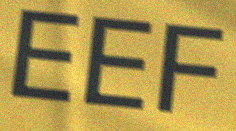
EEF